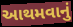
આથમવાનું